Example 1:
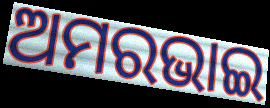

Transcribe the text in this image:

ଅମରଭାଇ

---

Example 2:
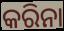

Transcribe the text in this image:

କରିନା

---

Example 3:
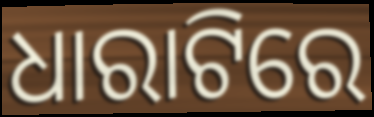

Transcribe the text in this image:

ଧାରାଟିରେ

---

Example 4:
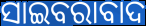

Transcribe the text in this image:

ସାଇବରାବାଦ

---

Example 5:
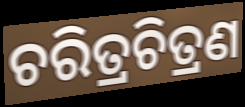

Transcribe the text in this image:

ଚରିତ୍ରଚିତ୍ରଣ